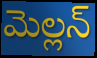
మెల్లన్